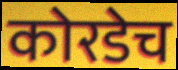
कोरडेच